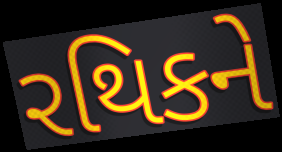
રથિકને